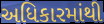
અધિકારમાંથી